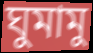
ঘুমামু